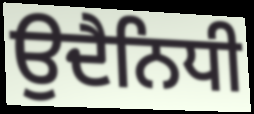
ਉਦੈਨਿਧੀ